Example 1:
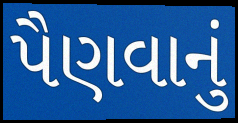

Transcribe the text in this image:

પૈણવાનું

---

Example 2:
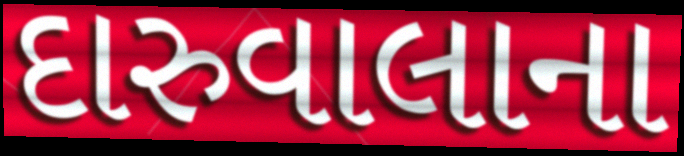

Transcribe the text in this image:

દારુવાલાના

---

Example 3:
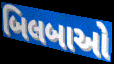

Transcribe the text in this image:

બિલબાઓ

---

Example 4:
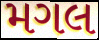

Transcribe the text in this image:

મગલ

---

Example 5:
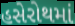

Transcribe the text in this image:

હસેરોથમાં